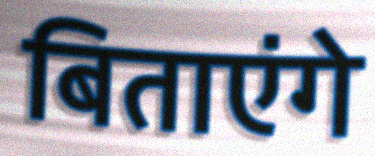
बिताएंगे